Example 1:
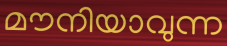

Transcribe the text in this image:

മൗനിയാവുന്ന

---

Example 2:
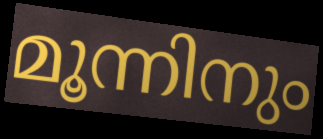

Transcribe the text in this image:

മൂന്നിനും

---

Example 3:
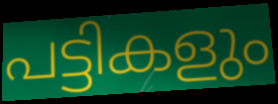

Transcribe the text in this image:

പട്ടികളും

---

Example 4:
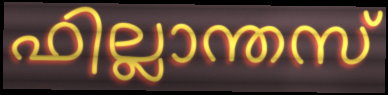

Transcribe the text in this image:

ഫില്ലാന്തസ്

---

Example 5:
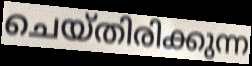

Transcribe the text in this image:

ചെയ്തിരിക്കുന്ന